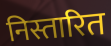
निस्तारित